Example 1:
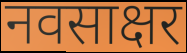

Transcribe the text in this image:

नवसाक्षर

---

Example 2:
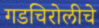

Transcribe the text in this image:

गडचिरोलीचे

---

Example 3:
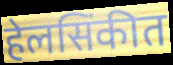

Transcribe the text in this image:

हेलसिंकीत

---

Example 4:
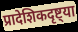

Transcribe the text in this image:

प्रादेशिकदृष्ट्या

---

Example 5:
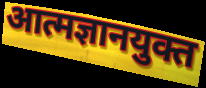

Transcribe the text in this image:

आत्मज्ञानयुक्त